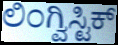
ಲಿಂಗ್ವಿಸ್ಟಿಕ್